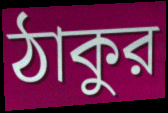
ঠাকুর